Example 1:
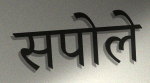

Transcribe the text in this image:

सपोले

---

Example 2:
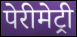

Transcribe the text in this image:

पेरीमेट्री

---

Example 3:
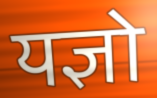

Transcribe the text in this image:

यज्ञो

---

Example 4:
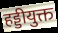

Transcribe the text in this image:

हड्डीयुक्त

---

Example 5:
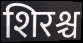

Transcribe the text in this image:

शिरश्च